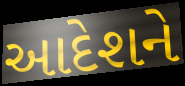
આદેશને